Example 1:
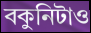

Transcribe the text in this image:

বকুনিটাও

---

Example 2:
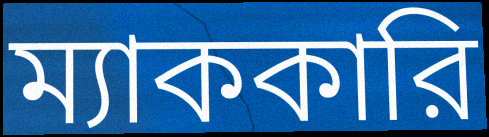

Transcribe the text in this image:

ম্যাককারি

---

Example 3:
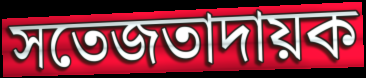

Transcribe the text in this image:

সতেজতাদায়ক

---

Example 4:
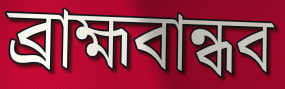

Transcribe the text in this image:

ব্রাহ্মবান্ধব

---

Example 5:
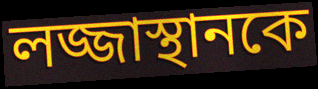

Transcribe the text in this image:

লজ্জাস্থানকে